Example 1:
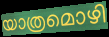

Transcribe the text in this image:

യാത്രമൊഴി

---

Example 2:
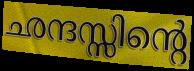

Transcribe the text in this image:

ഛന്ദസ്സിന്റെ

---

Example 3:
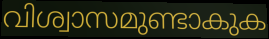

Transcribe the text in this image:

വിശ്വാസമുണ്ടാകുക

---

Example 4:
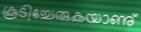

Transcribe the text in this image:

കൂടിച്ചേരുകയാണു്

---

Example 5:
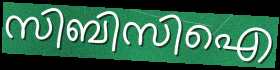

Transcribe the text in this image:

സിബിസിഐ